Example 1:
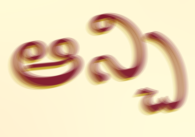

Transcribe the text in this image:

ఆన్చి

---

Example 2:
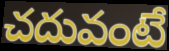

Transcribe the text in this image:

చదువంటే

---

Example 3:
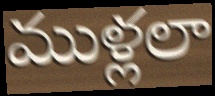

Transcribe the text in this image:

ముళ్లలా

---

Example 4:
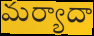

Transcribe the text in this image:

మర్యాదా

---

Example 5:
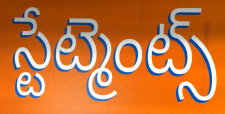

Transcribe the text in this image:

స్టేట్మెంట్స్